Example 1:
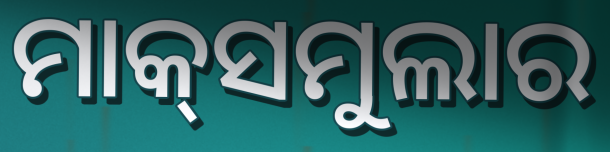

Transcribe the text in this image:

ମାକ୍‌ସମୁଲାର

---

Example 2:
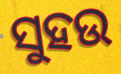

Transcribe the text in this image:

ସୁହଉ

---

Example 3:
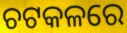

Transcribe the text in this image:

ଚଟକଳରେ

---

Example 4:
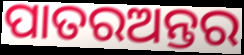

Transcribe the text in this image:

ପାତରଅନ୍ତର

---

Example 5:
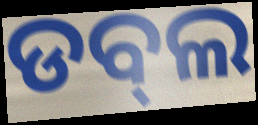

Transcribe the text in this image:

ଡବ୍‌ଲ